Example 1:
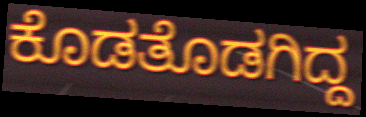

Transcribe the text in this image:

ಕೊಡತೊಡಗಿದ್ದ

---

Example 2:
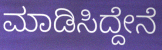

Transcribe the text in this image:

ಮಾಡಿಸಿದ್ದೇನೆ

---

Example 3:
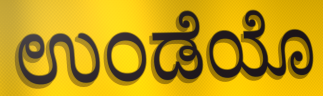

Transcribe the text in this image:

ಉಂಡೆಯೊ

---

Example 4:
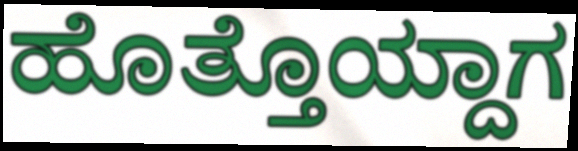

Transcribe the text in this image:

ಹೊತ್ತೊಯ್ದಾಗ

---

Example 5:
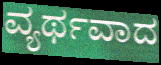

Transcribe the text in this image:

ವ್ಯರ್ಥವಾದ